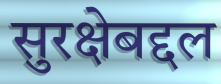
सुरक्षेबद्दल